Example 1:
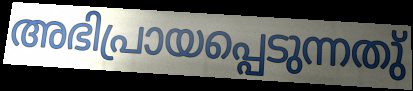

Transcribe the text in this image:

അഭിപ്രായപ്പെടുന്നതു്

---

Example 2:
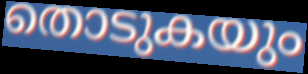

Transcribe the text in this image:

തൊടുകയും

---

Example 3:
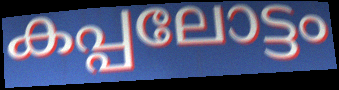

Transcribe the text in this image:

കപ്പലോട്ടം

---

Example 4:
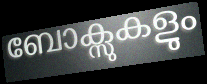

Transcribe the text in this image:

ബോക്സുകളും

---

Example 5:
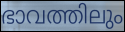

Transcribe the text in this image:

ഭാവത്തിലും